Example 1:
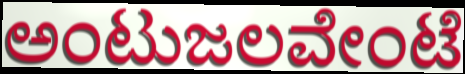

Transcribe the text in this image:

ಅಂಟುಜಲವೇಂಟೆ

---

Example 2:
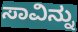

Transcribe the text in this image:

ಸಾವಿನ್ನು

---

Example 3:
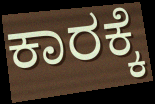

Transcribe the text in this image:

ಕಾರಕ್ಕೆ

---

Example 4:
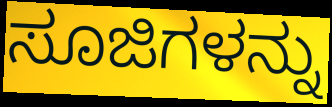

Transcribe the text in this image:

ಸೂಜಿಗಳನ್ನು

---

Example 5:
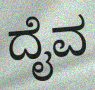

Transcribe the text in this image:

ದೈವ